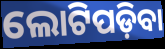
ଲୋଟିପଡ଼ିବା